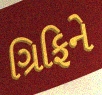
ગ્રિફિને